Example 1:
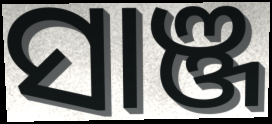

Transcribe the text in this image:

ସାଞ୍ଜ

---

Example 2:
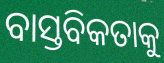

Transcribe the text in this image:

ବାସ୍ତବିକତାକୁ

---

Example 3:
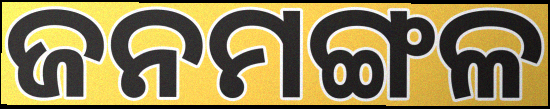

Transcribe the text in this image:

ଜନମଙ୍ଗଳ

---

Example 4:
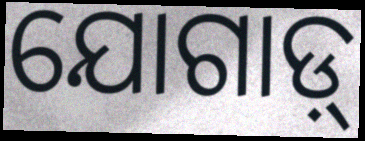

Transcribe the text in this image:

ଯୋଗାଡ଼୍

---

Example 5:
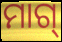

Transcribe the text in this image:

ମାଗ୍